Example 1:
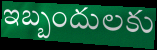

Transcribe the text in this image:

ఇబ్బందులకు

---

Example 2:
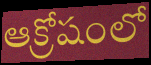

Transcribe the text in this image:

ఆక్రోషంలో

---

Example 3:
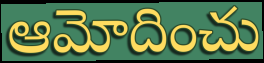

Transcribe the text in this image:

ఆమోదించు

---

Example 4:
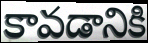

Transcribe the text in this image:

కావడానికి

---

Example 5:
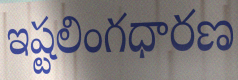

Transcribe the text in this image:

ఇష్టలింగధారణ